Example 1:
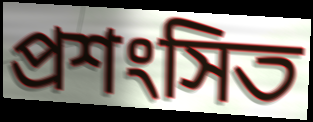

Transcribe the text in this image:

প্ৰশংসিত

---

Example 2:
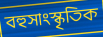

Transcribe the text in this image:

বহুসাংস্কৃতিক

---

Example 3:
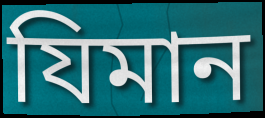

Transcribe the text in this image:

যিমান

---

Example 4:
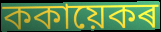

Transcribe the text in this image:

ককায়েকৰ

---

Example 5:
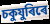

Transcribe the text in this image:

চকুযুৰিৰে